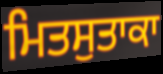
ਮਿਤਸੁਤਾਕਾ